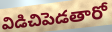
విడిచిపెడతారో